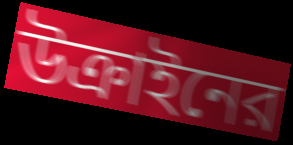
উক্রাইনের